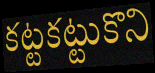
కట్టకట్టుకొని